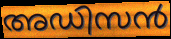
അഡിസൻ